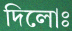
দিলোঃ